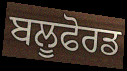
ਬਲੂਫੋਰਡ